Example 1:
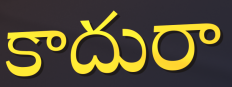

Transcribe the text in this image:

కాదురా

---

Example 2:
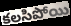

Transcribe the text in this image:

కలసిపోయి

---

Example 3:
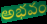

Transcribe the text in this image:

అభవం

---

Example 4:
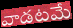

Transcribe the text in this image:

వాడటమే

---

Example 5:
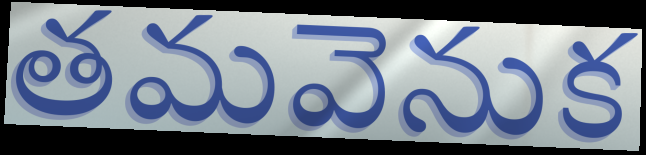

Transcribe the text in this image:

తమవెనుక